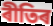
ৰীতিৰ